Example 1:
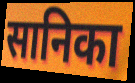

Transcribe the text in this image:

सानिका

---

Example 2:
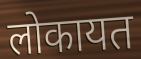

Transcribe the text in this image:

लोकायत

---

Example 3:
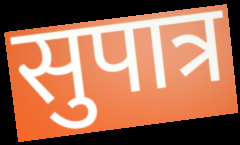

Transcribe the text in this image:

सुपात्र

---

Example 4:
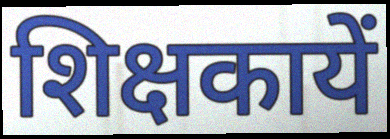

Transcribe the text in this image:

शिक्षकायें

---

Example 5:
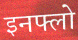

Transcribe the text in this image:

इनफ्लो